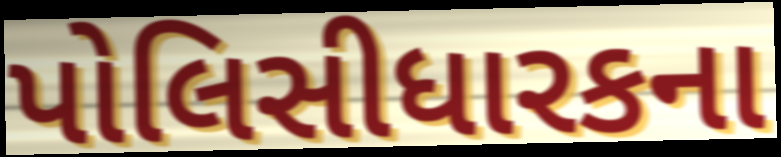
પોલિસીધારકના